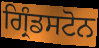
ਗ੍ਰਿੰਡਸਟੋਨ